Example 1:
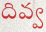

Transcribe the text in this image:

దివ్వ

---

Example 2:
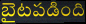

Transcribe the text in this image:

బైటపడింది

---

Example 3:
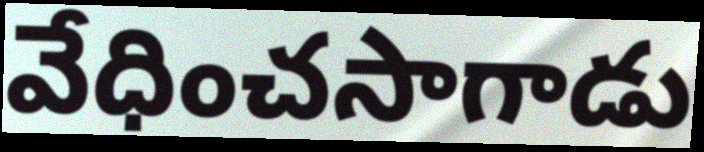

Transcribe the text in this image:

వేధించసాగాడు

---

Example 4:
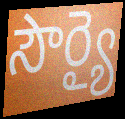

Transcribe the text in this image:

సౌర్యై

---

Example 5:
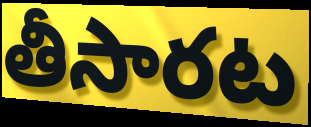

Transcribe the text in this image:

తీసారట